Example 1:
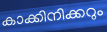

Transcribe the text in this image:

കാക്കിനിക്കറും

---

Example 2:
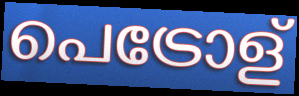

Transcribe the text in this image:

പെട്രോള്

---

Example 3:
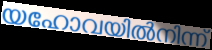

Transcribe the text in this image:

യഹോവയിൽനിന്ന്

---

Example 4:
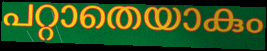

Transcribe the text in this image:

പറ്റാതെയാകും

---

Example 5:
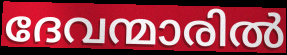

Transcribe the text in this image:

ദേവന്മാരിൽ